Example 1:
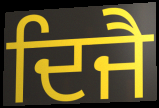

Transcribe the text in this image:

ਦਿਜੈ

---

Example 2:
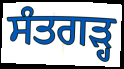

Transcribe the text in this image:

ਸੰਤਗੜ੍ਹ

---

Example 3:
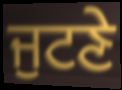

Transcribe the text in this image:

ਜੁਟਣੇ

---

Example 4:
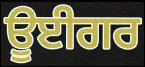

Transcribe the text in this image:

ਊਈਗਰ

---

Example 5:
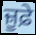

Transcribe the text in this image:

ਜ਼ੂਫ਼ੇ